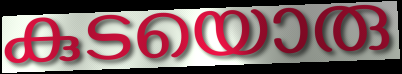
കുടയൊരു